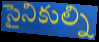
సైనికుల్ని